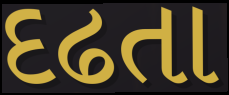
દઢતા